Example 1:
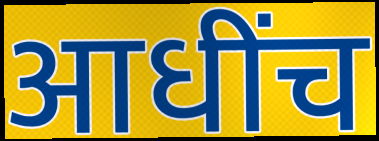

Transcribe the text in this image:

आधींच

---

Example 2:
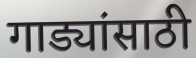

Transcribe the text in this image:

गाड्यांसाठी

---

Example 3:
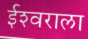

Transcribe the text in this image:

ईश्वराला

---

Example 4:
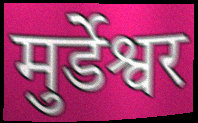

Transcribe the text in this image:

मुर्डेश्वर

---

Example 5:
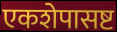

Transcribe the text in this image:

एकशेपासष्ट